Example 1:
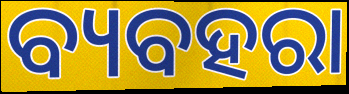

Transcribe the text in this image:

ବ୍ୟବହରା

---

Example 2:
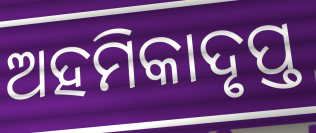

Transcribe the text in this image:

ଅହମିକାଦୃପ୍ତ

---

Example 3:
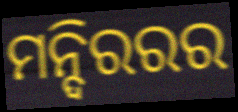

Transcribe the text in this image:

ମନ୍ଦିରରର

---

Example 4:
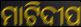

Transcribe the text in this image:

ମାଟିଦୀପ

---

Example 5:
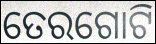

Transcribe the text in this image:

ତେରଗୋଟି